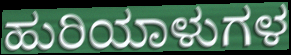
ಹುರಿಯಾಳುಗಳ